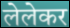
लेलेकर